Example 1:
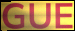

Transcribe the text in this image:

GUE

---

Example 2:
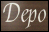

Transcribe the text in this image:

Depo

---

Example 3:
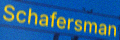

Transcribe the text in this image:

Schafersman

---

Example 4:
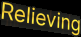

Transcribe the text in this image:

Relieving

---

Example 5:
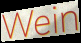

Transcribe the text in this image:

Wein